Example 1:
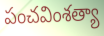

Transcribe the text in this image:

పంచవింశత్యా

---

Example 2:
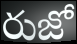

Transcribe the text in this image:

రుజో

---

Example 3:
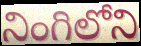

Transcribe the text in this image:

నింగిలోని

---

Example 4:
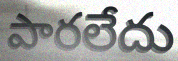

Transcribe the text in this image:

పారలేదు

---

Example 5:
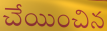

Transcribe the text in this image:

చేయించిన